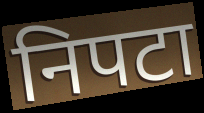
निपटा